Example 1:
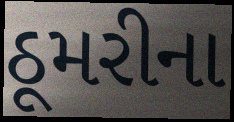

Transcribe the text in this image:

ઠૂમરીના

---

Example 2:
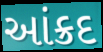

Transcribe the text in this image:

આંક્રદ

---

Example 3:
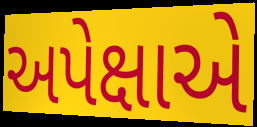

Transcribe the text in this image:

અપેક્ષાએ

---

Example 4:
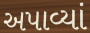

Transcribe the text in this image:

અપાવ્યાં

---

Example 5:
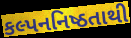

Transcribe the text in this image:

કલ્પનનિષ્ઠતાથી